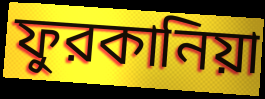
ফুরকানিয়া